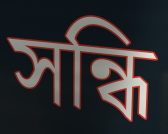
সন্ধি